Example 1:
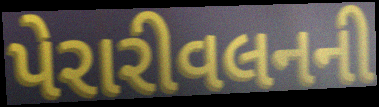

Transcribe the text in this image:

પેરારીવલનની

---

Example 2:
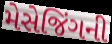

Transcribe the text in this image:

મેસેજિંગની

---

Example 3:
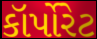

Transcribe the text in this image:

કૉર્પોરેટ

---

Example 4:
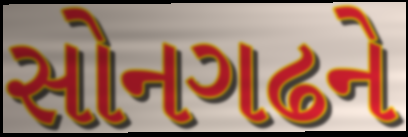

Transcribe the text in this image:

સોનગઢને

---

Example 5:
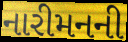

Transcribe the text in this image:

નારીમનની